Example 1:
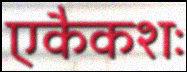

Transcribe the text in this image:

एकैकशः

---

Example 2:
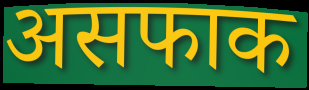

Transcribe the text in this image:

असफाक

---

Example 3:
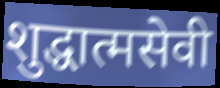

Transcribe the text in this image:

शुद्धात्मसेवी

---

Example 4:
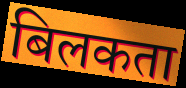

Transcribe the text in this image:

बिलकता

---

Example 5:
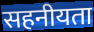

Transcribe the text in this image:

सहनीयता